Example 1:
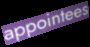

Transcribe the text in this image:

appointees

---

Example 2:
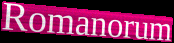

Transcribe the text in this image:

Romanorum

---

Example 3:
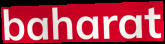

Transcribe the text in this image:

baharat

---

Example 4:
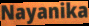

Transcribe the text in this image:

Nayanika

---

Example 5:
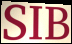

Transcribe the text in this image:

SIB